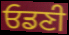
ਓਡਣੀ